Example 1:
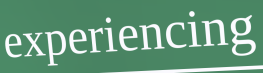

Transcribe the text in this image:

experiencing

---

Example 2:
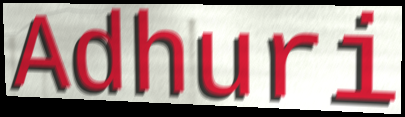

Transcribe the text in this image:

Adhuri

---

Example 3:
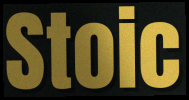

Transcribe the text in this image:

Stoic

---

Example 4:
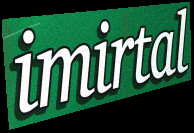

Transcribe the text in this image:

imirtal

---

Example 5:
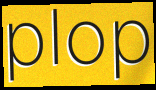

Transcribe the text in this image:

plop